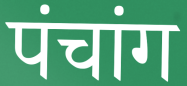
पंचांग